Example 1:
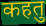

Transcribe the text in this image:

कहतु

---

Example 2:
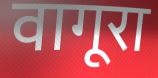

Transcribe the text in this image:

वागूरा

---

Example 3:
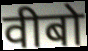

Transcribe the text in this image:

वीबो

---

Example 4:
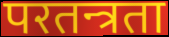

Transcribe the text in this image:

परतन्त्रता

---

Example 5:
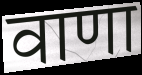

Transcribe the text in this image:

वाणा